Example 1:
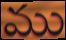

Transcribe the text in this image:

ము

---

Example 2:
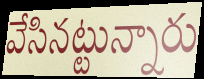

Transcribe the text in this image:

వేసినట్టున్నారు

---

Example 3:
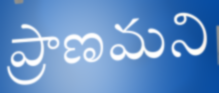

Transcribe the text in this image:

ప్రాణమని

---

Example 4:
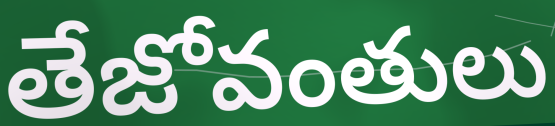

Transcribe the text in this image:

తేజోవంతులు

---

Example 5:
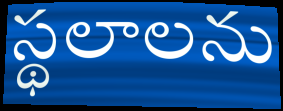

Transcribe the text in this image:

స్థలాలను